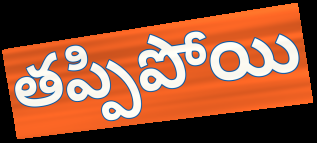
తప్పిపోయి